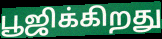
பூஜிக்கிறது